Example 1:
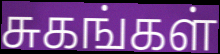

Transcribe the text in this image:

சுகங்கள்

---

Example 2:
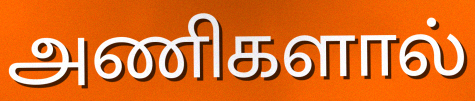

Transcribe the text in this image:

அணிகளால்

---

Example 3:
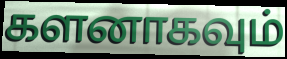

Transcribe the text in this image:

களனாகவும்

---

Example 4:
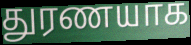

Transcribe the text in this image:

துரணயாக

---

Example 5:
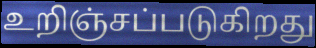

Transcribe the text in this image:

உறிஞ்சப்படுகிறது